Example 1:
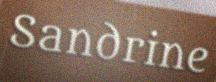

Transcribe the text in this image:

Sandrine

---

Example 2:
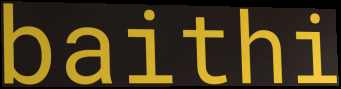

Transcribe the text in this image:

baithi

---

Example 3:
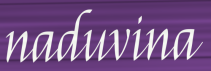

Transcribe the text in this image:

naduvina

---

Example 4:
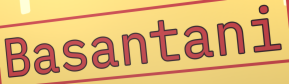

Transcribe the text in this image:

Basantani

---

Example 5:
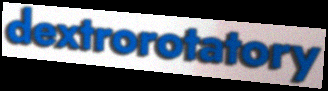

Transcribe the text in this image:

dextrorotatory